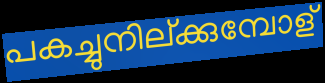
പകച്ചുനില്ക്കുമ്പോള്